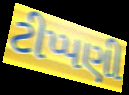
ટીપ્પણી